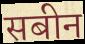
सबीन